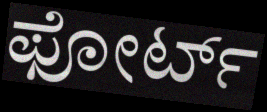
ಫೋರ್ಟ್